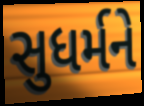
સુધર્મને